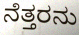
ನೆತ್ತರನು